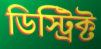
ডিস্ট্রিক্ট